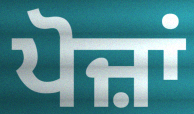
ਪੋਜ਼ਾਂ